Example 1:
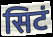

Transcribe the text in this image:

सिटं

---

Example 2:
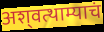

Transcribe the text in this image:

अश्वत्थाम्याचं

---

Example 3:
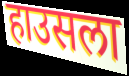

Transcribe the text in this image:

हाउसला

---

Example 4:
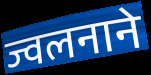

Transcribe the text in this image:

ज्वलनाने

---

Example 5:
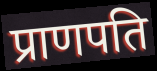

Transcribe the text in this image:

प्राणपति